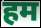
हम